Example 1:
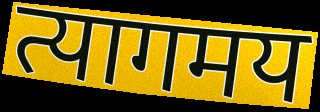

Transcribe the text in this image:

त्यागमय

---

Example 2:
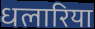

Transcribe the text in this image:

धलारिया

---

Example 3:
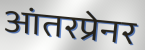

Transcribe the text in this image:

आंतरप्रेनर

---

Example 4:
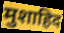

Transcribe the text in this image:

मुशाहिद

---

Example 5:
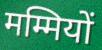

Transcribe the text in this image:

मम्मियों